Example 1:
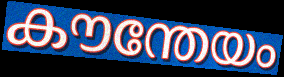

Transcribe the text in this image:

കൗന്തേയം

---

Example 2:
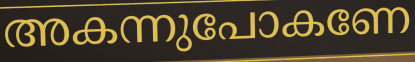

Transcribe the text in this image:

അകന്നുപോകണേ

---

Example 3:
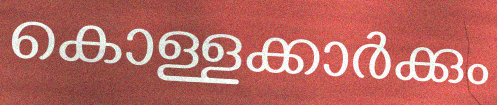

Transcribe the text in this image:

കൊള്ളക്കാർക്കും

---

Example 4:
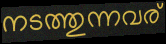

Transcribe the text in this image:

നടത്തുന്നവര്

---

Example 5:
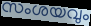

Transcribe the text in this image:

സംശയവും